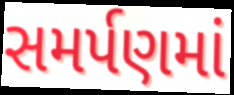
સમર્પણમાં